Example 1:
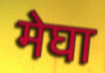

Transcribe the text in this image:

मेघा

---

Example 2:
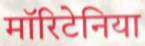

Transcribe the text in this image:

मॉरिटेनिया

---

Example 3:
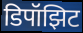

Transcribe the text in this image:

डिपॉझिट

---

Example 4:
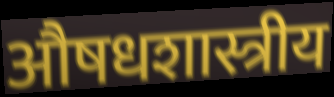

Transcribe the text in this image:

औषधशास्त्रीय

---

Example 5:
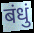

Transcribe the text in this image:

बंधुं